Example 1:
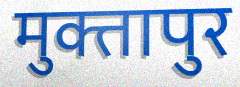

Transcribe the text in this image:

मुक्तापुर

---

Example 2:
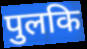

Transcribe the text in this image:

पुलकि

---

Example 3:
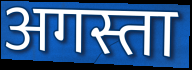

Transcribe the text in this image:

अगस्ता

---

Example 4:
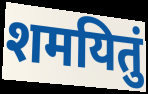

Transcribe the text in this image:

शमयितुं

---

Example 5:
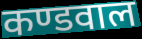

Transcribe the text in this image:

कण्डवाल